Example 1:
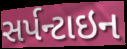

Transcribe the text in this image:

સર્પન્ટાઇન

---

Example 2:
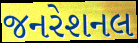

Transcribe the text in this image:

જનરેશનલ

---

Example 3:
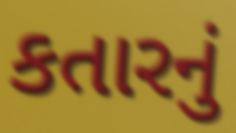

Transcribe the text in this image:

કતારનું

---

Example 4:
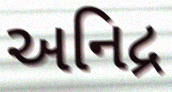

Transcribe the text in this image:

અનિદ્ર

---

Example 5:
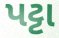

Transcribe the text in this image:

પટ્ટા